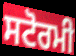
ਸਟੋਰਮੀ